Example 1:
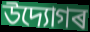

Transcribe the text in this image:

উদ্যোগৰ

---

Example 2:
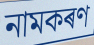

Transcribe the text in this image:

নামকৰণ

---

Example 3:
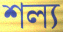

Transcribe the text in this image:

শল্য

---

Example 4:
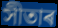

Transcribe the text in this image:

সীতাৰ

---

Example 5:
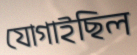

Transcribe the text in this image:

যোগাইছিল